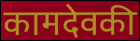
कामदेवकी